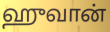
ஹுவான்